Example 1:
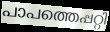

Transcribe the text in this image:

പാപത്തെപ്പറ്റി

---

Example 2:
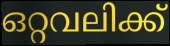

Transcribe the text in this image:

ഒറ്റവലിക്ക്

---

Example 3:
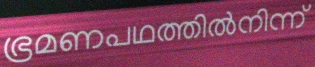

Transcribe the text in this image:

ഭ്രമണപഥത്തിൽനിന്ന്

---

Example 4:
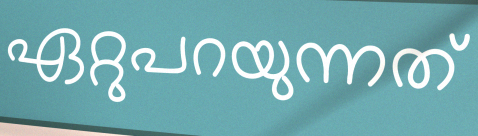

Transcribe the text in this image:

ഏറ്റുപറയുന്നത്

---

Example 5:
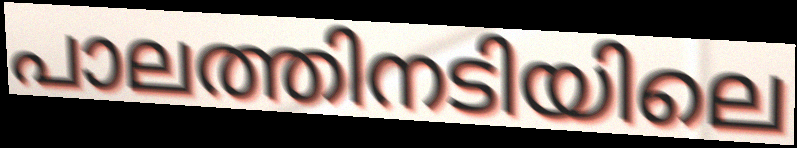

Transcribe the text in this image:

പാലത്തിനടിയിലെ